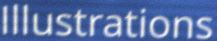
Illustrations